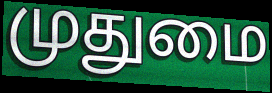
முதுமை